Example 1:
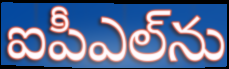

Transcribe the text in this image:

ఐపీఎల్‌ను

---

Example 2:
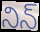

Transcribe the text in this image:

నిన్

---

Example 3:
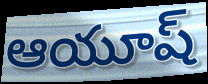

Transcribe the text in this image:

ఆయూష్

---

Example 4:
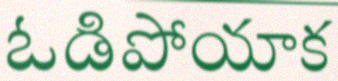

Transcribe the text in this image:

ఓడిపోయాక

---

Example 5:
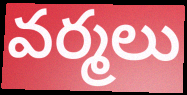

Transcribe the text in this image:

వర్మలు